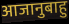
आजानुबाहु